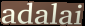
adalai